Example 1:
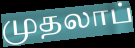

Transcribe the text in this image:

முதலாப்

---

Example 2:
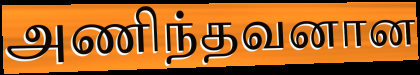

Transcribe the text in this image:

அணிந்தவனான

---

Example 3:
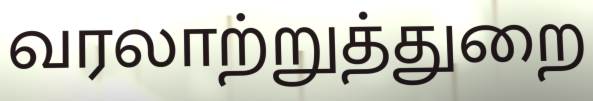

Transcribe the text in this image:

வரலாற்றுத்துறை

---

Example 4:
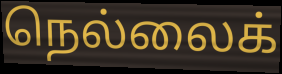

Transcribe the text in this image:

நெல்லைக்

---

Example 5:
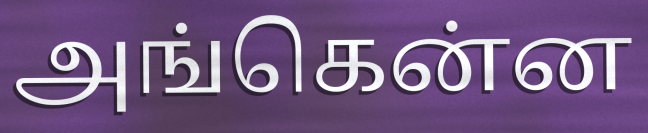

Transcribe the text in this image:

அங்கென்ன